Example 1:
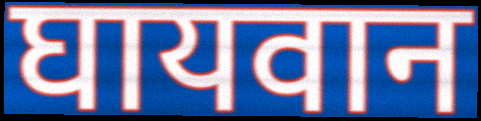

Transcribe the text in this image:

घायवान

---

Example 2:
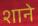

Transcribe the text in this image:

शाने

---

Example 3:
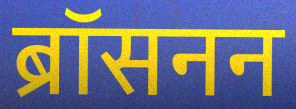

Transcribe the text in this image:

ब्रॉसनन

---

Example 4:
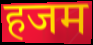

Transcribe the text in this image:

हजम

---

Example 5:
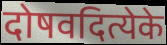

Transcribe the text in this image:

दोषवदित्येके